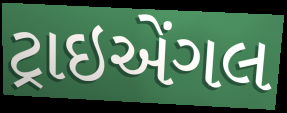
ટ્રાઇએંગલ